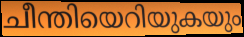
ചീന്തിയെറിയുകയും